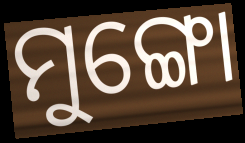
ମୁଙ୍ଗୋ